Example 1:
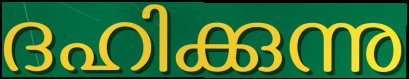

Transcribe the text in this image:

ദഹിക്കുന്നു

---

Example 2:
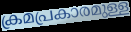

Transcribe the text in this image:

ക്രമപ്രകാരമുള്ള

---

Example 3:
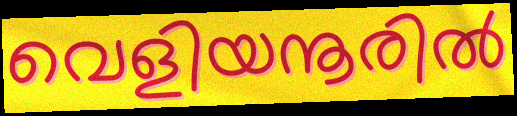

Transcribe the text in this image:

വെളിയനൂരിൽ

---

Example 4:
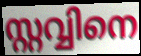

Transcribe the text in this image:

സ്റ്റവ്വിനെ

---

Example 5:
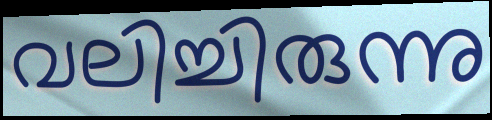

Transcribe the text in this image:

വലിച്ചിരുന്നു